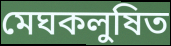
মেঘকলুষিত